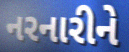
નરનારીને